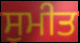
ਸੁਮੀਤ